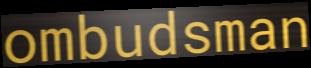
ombudsman